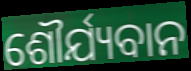
ଶୌର୍ଯ୍ୟବାନ